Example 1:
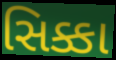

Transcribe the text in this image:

સિક્કા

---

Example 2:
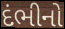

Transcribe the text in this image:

દંભીનો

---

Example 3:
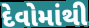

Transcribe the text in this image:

દેવોમાંથી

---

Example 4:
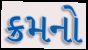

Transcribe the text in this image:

ક્રમનો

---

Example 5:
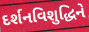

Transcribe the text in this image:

દર્શનવિશુદ્ધિને